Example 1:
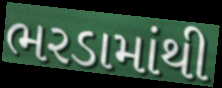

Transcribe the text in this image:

ભરડામાંથી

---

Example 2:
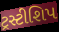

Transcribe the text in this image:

ટ્રસ્ટીશિપ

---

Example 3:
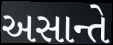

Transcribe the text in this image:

અસાન્તે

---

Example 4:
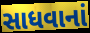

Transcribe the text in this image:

સાધવાનાં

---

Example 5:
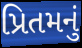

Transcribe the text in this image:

પ્રિતમનું